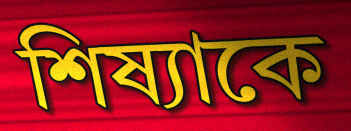
শিষ্যাকে